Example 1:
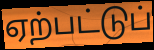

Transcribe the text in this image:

ஏற்பட்டுப்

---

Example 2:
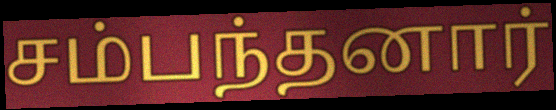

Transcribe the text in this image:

சம்பந்தனார்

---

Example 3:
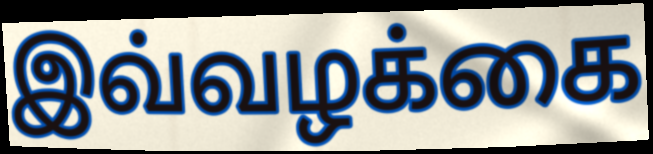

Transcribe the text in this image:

இவ்வழக்கை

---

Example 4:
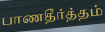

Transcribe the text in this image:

பாணதீர்த்தம்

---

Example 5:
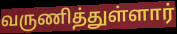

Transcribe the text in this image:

வருணித்துள்ளார்